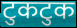
टुकटुक